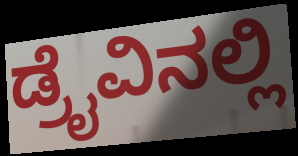
ಡ್ರೈವಿನಲ್ಲಿ